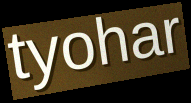
tyohar